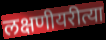
लक्षणीयरीत्या